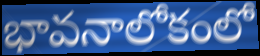
భావనాలోకంలో